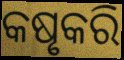
କଷୃକରି